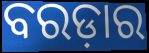
ବରଡ଼ାର